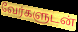
வேர்களுடன்